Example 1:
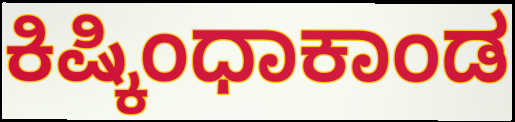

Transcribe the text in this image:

ಕಿಷ್ಕಿಂಧಾಕಾಂಡ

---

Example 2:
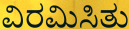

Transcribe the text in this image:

ವಿರಮಿಸಿತು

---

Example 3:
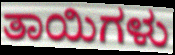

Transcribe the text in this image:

ತಾಯಿಗಳು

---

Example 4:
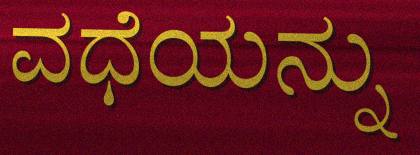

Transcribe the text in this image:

ವಧೆಯನ್ನು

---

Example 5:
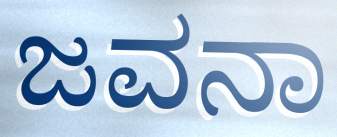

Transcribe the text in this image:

ಜವನಾ